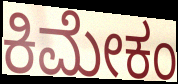
ಕಿಮೇಕಂ